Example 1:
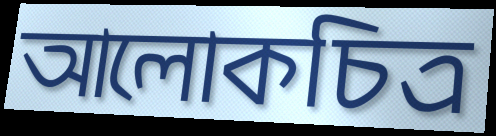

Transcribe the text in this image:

আলোকচিত্র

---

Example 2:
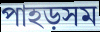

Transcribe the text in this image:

পাহড়সম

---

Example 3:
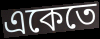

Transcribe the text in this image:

একেতে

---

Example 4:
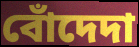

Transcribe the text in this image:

বোঁদেদা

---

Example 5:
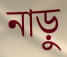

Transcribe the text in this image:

নাড়ু